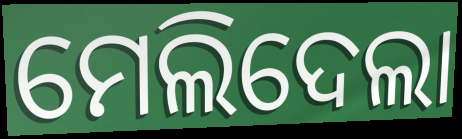
ମେଲିଦେଲା